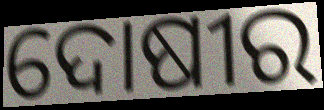
ଦୋଷୀର